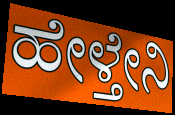
ಹೇಳ್ತೇನಿ